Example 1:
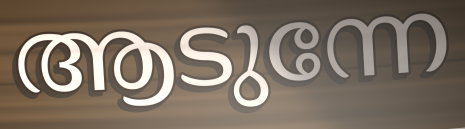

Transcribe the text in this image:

ആടുന്നേ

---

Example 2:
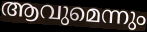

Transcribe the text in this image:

ആവുമെന്നും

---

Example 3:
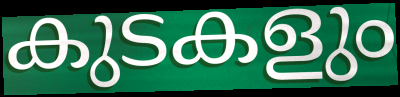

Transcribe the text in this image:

കുടകളും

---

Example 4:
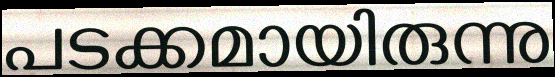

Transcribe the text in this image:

പടക്കമായിരുന്നു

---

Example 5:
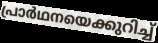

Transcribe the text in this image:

പ്രാർഥനയെക്കുറിച്ച്